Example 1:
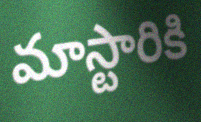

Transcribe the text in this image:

మాస్టారికి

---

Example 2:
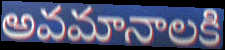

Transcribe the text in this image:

అవమానాలకి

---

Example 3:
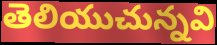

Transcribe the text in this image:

తెలియుచున్నవి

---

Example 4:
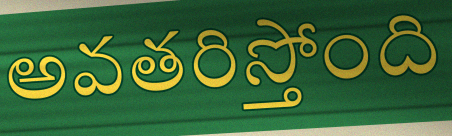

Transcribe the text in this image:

అవతరిస్తోంది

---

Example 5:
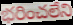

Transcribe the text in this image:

భరించలేని